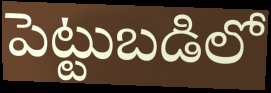
పెట్టుబడిలో